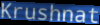
Krushnat